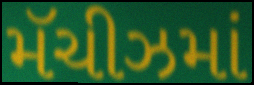
મૅચીઝમાં